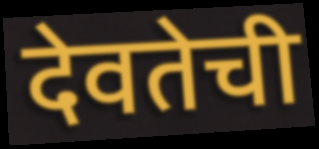
देवतेची